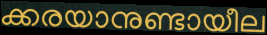
ക്കരയാനുണ്ടായീല